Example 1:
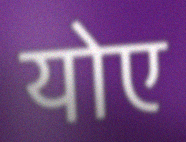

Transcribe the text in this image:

योए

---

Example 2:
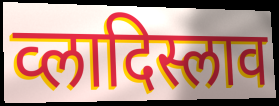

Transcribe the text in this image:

व्लादिस्लाव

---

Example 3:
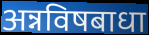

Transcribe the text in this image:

अन्नविषबाधा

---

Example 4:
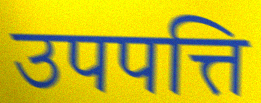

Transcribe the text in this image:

उपपत्ति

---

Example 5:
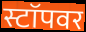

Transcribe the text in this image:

स्टॉपवर